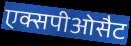
एक्सपीओसैट